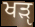
ਖੜੵ